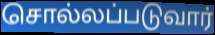
சொல்லப்படுவார்